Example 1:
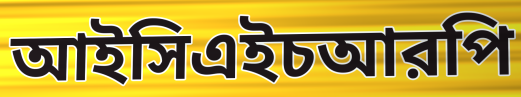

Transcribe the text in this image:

আইসিএইচআরপি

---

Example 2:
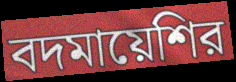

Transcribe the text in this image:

বদমায়েশির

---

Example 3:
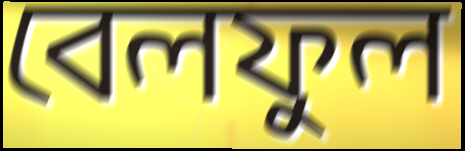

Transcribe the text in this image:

বেলফুল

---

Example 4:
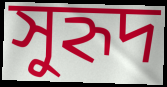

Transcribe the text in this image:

সুহৃদ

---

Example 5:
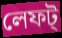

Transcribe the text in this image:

লেফট্